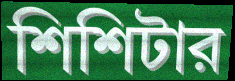
শিশিটার